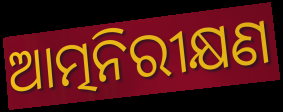
ଆତ୍ମନିରୀକ୍ଷଣ